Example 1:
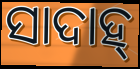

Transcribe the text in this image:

ସାଦାହ୍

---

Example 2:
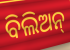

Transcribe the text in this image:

ବିଲିଅନ୍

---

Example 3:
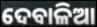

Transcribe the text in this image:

ଦେବାଳିଆ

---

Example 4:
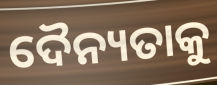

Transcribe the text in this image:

ଦୈନ୍ୟତାକୁ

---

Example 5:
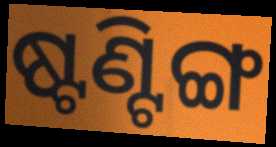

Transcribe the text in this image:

ଷ୍ଟଣ୍ଟିଙ୍ଗ